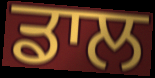
ਡਾਲ